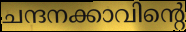
ചന്ദനക്കാവിന്റെ